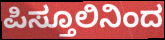
ಪಿಸ್ತೂಲಿನಿಂದ